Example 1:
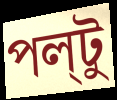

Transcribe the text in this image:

পল্‌টু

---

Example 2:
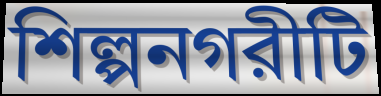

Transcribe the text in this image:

শিল্পনগরীটি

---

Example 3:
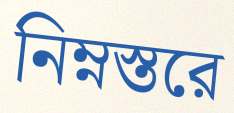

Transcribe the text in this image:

নিম্নস্তরে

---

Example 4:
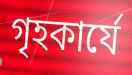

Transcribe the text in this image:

গৃহকার্যে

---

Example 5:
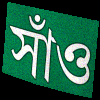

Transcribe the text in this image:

সাঁও